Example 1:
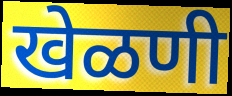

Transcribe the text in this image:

खेळणी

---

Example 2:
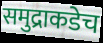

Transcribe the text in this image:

समुद्राकडेच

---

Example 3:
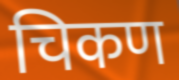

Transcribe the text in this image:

चिकण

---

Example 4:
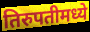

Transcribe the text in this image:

तिरुपतीमध्ये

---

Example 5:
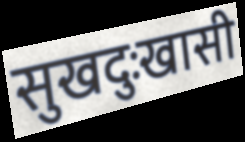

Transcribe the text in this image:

सुखदुःखासी